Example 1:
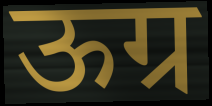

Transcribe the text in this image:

ऊग्र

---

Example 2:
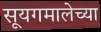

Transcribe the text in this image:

सूयगमालेच्या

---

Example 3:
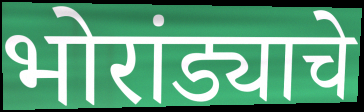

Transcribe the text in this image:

भोरांड्याचे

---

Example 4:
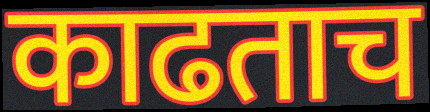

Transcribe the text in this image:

काढताच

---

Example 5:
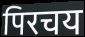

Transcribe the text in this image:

पिरचय